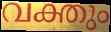
വക്തും